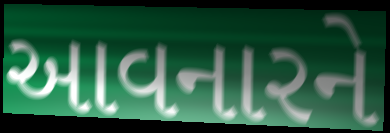
આવનારને